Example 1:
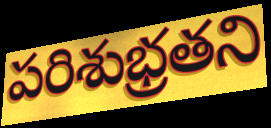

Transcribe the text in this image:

పరిశుభ్రతని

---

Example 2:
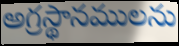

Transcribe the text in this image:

అగ్రస్థానములను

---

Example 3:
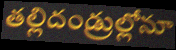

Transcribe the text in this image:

తల్లిదండ్రుల్లోనూ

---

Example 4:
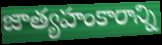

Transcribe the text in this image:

జాత్యహంకారాన్ని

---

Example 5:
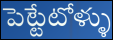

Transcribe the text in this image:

పెట్టేటోళ్ళు